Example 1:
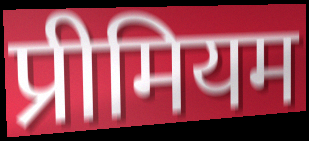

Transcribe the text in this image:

प्रीमियम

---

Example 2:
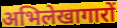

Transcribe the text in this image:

अभिलेखागारों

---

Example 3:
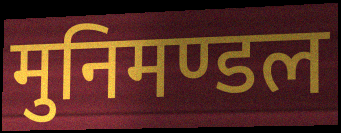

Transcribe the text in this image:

मुनिमण्डल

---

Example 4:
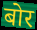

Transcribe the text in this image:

बोर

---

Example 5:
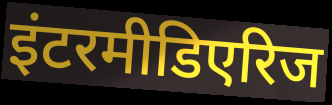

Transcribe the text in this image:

इंटरमीडिएरिज